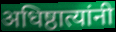
अधिष्ठात्यांनी